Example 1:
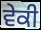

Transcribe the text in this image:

ਵੇਕੀ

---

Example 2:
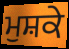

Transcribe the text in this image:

ਮੁਸ਼ਕੇ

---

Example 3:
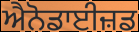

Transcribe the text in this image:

ਐਨੋਡਾਈਜ਼ਡ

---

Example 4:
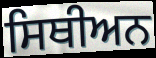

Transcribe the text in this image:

ਸਿਥੀਅਨ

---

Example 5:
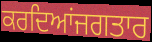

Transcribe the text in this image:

ਕਰਦਿਆਂਜਗਤਾਰ